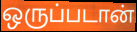
ஒருப்படான்